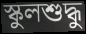
স্কুলশুদ্ধু